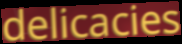
delicacies